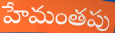
హేమంతపు